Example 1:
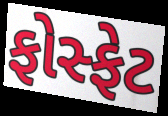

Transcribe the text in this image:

ફોસ્ફેટ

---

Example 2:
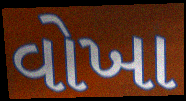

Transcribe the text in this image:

વોખા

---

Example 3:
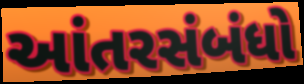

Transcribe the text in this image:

આંતરસંબંધો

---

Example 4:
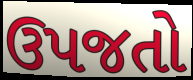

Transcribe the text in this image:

ઉપજતો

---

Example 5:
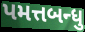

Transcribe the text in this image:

પમત્તબન્ધુ